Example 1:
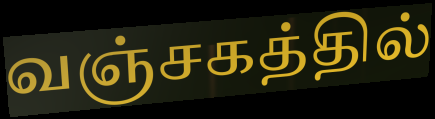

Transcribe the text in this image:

வஞ்சகத்தில்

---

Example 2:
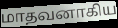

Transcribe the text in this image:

மாதவனாகிய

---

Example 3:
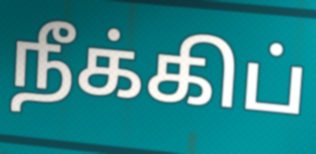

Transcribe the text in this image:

நீக்கிப்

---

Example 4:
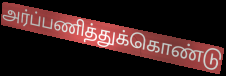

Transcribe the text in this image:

அர்ப்பணித்துக்கொண்டு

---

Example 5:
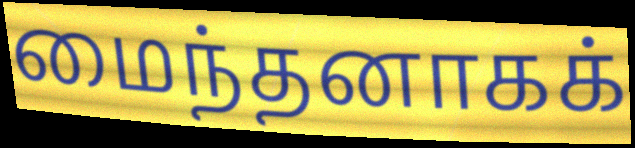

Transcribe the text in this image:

மைந்தனாகக்